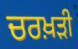
ਚਰਖ਼ੜੀ